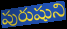
పురుషుని